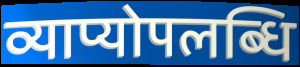
व्याप्योपलब्धि